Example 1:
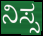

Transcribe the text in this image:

ನಿಸ್ಸ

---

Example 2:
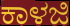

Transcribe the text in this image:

ಕಾಳಜಿ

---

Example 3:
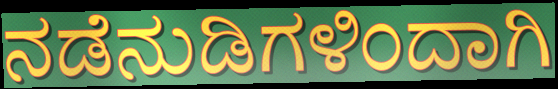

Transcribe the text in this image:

ನಡೆನುಡಿಗಳಿಂದಾಗಿ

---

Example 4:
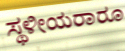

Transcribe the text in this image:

ಸ್ಥಳೀಯರಾರೂ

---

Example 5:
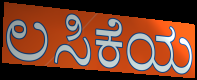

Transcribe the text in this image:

ಲಸಿಕೆಯ